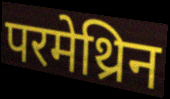
परमेथ्रिन